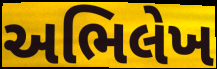
અભિલેખ